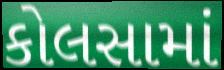
કોલસામાં